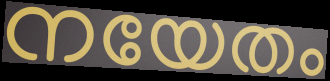
നയേതം